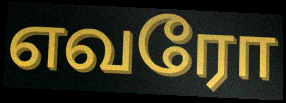
எவரோ